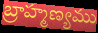
బ్రాహ్మణ్యము